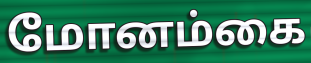
மோனம்கை